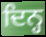
ਦਿਨ੍ਹ